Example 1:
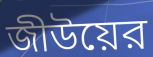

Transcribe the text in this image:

জীউয়ের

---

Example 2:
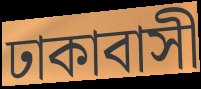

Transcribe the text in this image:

ঢাকাবাসী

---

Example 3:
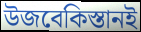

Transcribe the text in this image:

উজবেকিস্তানই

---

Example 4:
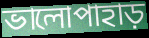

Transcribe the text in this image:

ভালোপাহাড়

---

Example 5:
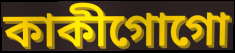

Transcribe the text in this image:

কাকীগোগো